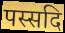
पस्सदि